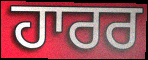
ਹਾਰਰ